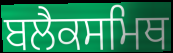
ਬਲੈਕਸਮਿਥ